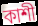
কাশী